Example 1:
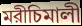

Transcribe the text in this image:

মরীচিমালী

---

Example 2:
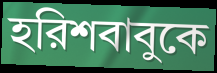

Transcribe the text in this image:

হরিশবাবুকে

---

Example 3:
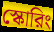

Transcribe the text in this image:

স্কোরিং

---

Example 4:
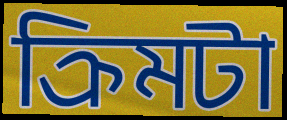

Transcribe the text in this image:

ক্রিমটা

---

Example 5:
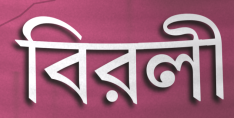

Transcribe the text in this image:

বিরলী